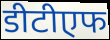
डीटीएफ